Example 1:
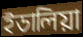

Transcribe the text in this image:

ইডালিয়া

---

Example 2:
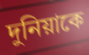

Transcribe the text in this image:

দুনিয়াকে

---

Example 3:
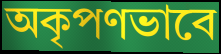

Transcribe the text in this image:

অকৃপণভাবে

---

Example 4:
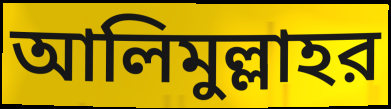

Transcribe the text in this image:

আলিমুল্লাহর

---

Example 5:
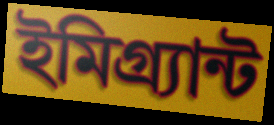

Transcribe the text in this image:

ইমিগ্র্যান্ট